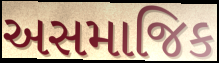
અસમાજિક